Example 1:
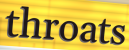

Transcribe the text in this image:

throats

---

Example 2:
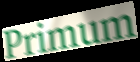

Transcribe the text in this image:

Primum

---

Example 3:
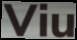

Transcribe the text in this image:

Viu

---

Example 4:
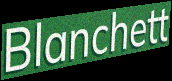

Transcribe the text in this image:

Blanchett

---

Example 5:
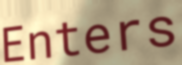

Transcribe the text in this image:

Enters